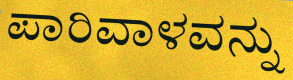
ಪಾರಿವಾಳವನ್ನು